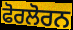
ਫੋਰਲੋਰਨ